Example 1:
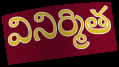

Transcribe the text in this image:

వినిర్మిత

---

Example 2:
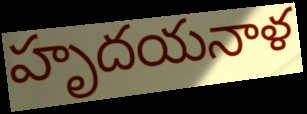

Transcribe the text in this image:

హృదయనాళ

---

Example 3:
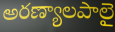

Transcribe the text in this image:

అరణ్యాలపాలై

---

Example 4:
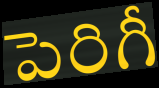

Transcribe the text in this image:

పెరిగీ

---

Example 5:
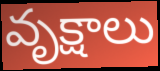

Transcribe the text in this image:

వృక్షాలు